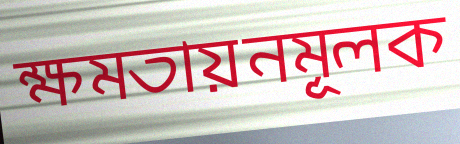
ক্ষমতায়নমূলক